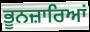
ਭੂਨਜ਼ਾਰਿਆਂ